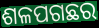
ଶଳପଗଛର